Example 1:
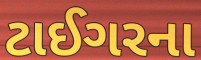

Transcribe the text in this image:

ટાઈગરના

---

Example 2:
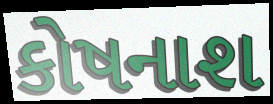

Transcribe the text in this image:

કોષનાશ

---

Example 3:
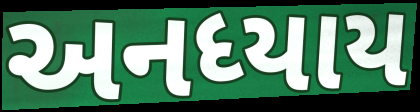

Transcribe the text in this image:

અનધ્યાય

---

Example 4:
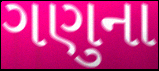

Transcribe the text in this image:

ગણુના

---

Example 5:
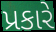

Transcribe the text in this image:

પ્રકારે